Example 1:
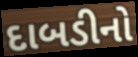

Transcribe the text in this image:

દાબડીનો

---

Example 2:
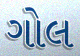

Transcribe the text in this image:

ગોલ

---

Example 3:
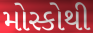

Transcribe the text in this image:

મોસ્કોથી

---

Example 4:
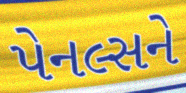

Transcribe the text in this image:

પેનલ્સને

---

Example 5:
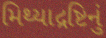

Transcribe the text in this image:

મિથ્યાદ્રષ્ટિનું